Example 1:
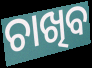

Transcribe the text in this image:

ଚାଖିବ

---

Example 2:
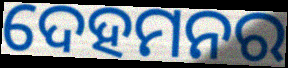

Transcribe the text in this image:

ଦେହମନର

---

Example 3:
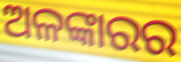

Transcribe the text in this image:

ଅଳଙ୍କାରର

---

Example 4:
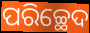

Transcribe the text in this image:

ପରିଚ୍ଛେଦ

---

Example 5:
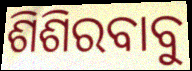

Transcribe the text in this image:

ଶିଶିରବାବୁ